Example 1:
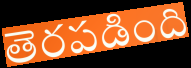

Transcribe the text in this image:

తెరపడింది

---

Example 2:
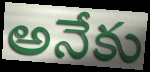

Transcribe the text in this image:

అనేకు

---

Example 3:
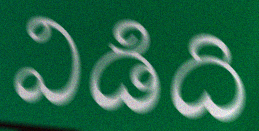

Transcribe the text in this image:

విడిది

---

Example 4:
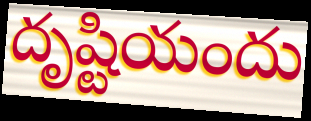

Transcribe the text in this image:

దృష్టియందు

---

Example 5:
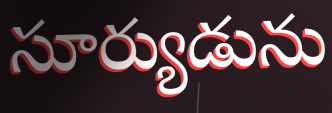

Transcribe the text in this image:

సూర్యుడును